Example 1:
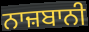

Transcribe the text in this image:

ਨਾਜ਼ਬਾਨੀ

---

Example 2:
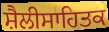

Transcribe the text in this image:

ਸ਼ੈਲੀਸਾਹਿਤਕ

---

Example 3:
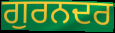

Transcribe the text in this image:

ਗੁਰਨਦਰ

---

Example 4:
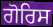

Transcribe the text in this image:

ਗੋਰਿਸ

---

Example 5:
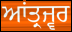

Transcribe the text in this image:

ਆਂਤ੍ਰਜ੍ਵਰ